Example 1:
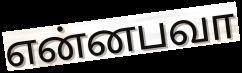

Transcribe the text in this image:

என்னபவா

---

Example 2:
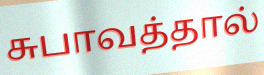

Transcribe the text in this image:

சுபாவத்தால்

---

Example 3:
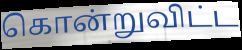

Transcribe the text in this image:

கொன்றுவிட்ட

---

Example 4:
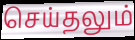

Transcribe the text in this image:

செய்தலும்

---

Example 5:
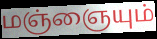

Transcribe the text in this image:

மஞ்ஞையும்